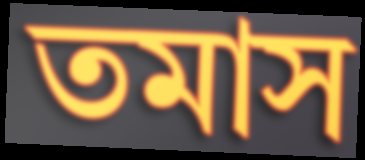
তমাস